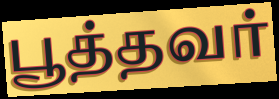
பூத்தவர்